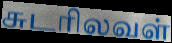
சுடரிலவள்